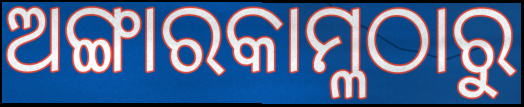
ଅଙ୍ଗାରକାମ୍ଳଠାରୁ